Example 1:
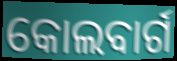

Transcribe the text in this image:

କୋଲବାର୍ଗ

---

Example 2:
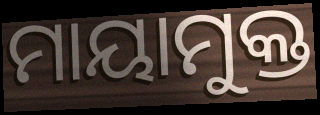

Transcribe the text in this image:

ମାୟାମୁକ୍ତ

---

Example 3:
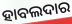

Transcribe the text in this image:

ହାବଲଦାର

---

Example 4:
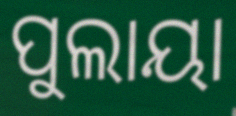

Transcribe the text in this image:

ପୁଲାୟା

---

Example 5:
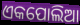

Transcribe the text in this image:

ଏକପୋଲିଆ